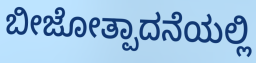
ಬೀಜೋತ್ಪಾದನೆಯಲ್ಲಿ